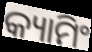
କ୍ୟାମିଂ